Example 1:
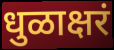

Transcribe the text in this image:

धुळाक्षरं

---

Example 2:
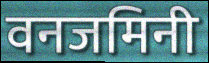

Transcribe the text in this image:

वनजमिनी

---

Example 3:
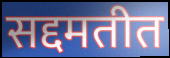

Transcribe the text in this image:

सद्दमतीत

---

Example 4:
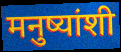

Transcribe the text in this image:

मनुष्यांशी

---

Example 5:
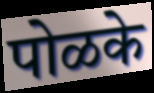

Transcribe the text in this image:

पोळके